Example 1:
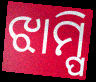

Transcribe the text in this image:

ଝାମ୍ପି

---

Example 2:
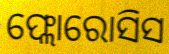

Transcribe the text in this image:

ଫ୍ଲୋରୋସିସ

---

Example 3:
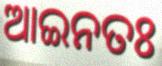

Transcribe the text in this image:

ଆଇନତଃ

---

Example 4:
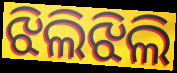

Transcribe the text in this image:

ଝିଲିଝିଲି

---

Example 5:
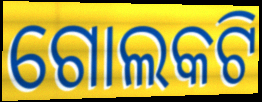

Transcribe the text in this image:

ଗୋଲକଟି